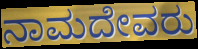
ನಾಮದೇವರು